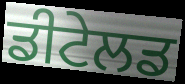
ਡੀਟੇਲਡ